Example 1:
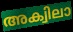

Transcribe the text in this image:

അക്വിലാ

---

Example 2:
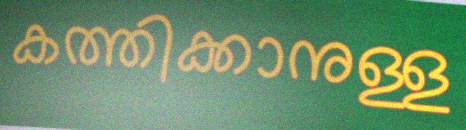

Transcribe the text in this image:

കത്തിക്കാനുള്ള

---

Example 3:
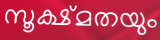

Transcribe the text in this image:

സൂക്ഷ്മതയും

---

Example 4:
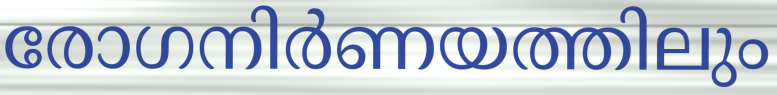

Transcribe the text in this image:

രോഗനിർണയത്തിലും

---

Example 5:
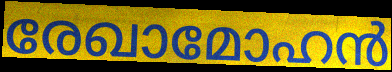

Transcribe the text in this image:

രേഖാമോഹൻ